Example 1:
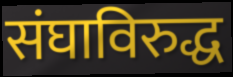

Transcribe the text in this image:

संघाविरुद्ध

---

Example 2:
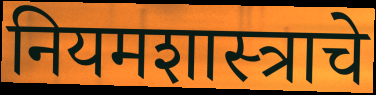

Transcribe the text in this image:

नियमशास्त्राचे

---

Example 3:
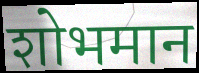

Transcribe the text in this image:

शोभमान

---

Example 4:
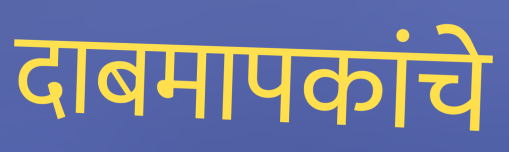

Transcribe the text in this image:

दाबमापकांचे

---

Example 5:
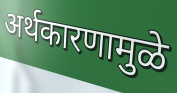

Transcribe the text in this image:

अर्थकारणामुळे